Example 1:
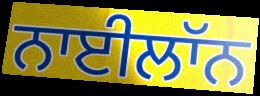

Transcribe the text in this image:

ਨਾਈਲਾੱਨ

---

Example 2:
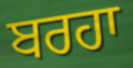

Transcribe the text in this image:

ਬਰਹਾ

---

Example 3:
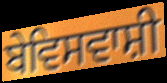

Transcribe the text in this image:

ਬੇਵਿਸਵਾਸ਼ੀ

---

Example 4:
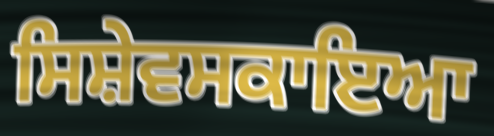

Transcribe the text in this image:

ਸਿਸ਼ੇਵਸਕਾਇਆ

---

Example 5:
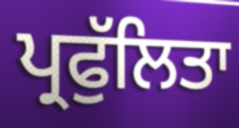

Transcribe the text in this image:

ਪ੍ਰਫੁੱਲਿਤਾ